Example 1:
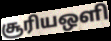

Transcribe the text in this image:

சூரியஒளி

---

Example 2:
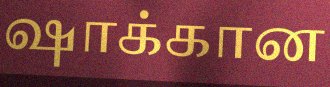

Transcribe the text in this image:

ஷாக்கான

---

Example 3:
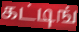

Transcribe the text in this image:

கட்டிங்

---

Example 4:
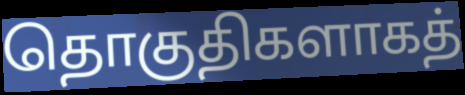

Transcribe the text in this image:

தொகுதிகளாகத்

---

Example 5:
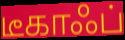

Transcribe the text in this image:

டீகாஃப்